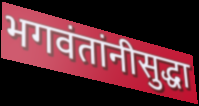
भगवंतांनीसुद्धा